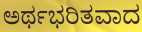
ಅರ್ಥಭರಿತವಾದ